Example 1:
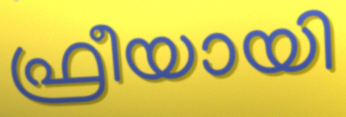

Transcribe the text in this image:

ഫ്രീയായി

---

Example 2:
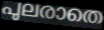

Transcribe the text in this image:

പുലരാതെ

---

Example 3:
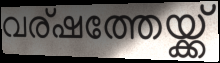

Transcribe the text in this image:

വര്ഷത്തേയ്ക്ക്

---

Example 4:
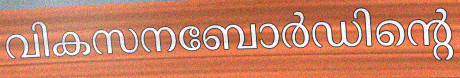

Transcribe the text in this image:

വികസനബോർഡിന്റെ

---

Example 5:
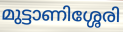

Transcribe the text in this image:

മുട്ടാണിശ്ശേരി